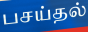
பசய்தல்